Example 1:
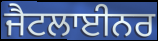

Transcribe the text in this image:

ਜੈਟਲਾਈਨਰ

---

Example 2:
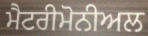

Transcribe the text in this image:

ਮੈਟਰੀਮੋਨੀਅਲ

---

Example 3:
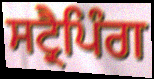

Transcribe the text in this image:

ਸਟ੍ਰੈਪਿੰਗ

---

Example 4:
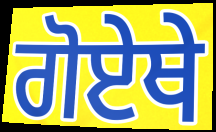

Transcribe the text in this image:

ਗੋਏਥੇ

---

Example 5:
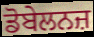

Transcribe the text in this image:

ਡੋਬੇਲਨਜ਼